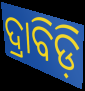
ଦ୍ରାବିଡ଼ି